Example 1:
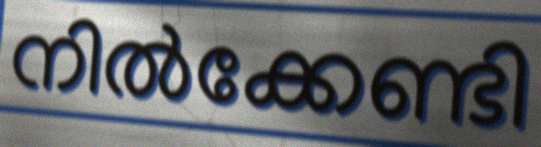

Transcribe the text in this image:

നിൽക്കേണ്ടി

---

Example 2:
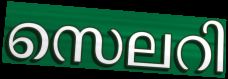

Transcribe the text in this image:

സെലറി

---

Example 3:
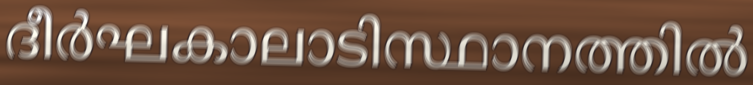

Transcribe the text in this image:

ദീർഘകാലാടിസ്ഥാനത്തിൽ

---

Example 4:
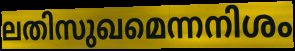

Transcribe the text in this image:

ലതിസുഖമെന്നനിശം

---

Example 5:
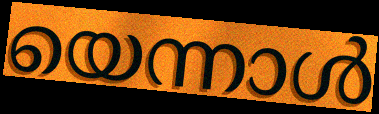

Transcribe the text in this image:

യെന്നാൾ